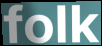
folk